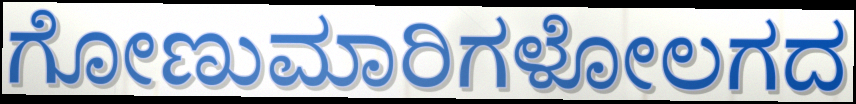
ಗೋಣುಮಾರಿಗಳೋಲಗದ